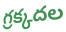
గ్రక్కదల